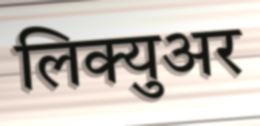
लिक्युअर